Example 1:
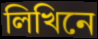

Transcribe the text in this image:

লিখিনে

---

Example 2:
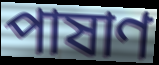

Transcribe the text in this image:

পাষাণ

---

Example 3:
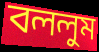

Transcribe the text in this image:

বললুম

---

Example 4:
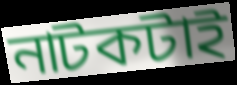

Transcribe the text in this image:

নাটকটাই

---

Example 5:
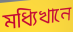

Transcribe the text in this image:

মধ্যিখানে